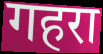
गहरा